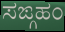
ಸಙ್ಗಹಂ